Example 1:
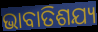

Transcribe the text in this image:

ଭାବାତିଶଯ୍ୟ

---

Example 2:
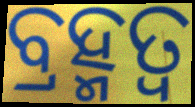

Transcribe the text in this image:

ବ୍ରହ୍ମତ୍ୱ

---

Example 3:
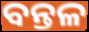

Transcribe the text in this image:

ବନ୍ତଳ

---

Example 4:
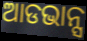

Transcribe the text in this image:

ଆଡଭାନ୍ସ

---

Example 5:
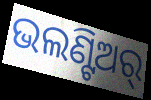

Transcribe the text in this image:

ଭଲଣ୍ଟିଅର୍